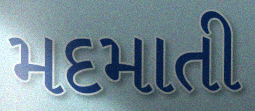
મદમાતી